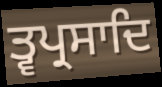
ਤ੍ਵਪ੍ਰਸਾਦਿ